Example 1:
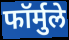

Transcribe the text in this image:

फॉर्मुले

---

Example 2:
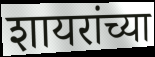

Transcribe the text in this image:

शायरांच्या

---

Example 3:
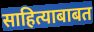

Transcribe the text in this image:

साहित्याबाबत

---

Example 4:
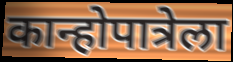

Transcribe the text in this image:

कान्होपात्रेला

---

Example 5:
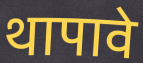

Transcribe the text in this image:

थापावे